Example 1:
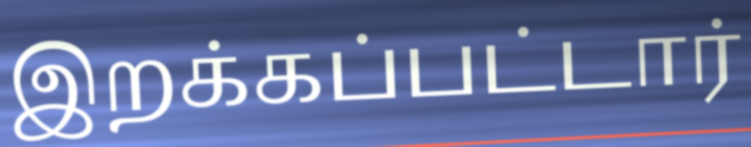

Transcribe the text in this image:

இறக்கப்பட்டார்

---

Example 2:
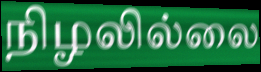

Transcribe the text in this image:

நிழலில்லை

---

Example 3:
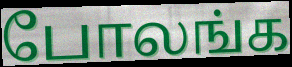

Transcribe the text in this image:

போலங்க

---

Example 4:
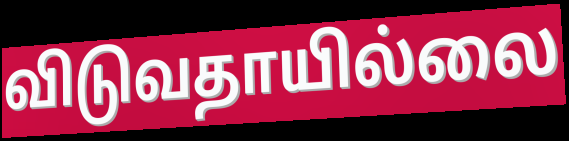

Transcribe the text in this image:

விடுவதாயில்லை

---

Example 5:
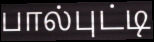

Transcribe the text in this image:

பால்புட்டி